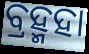
ବ୍ରହ୍ମହା